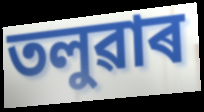
তলুৱাৰ